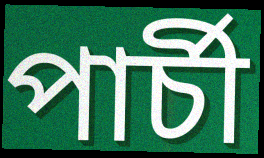
পাৰ্চী